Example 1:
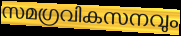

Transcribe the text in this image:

സമഗ്രവികസനവും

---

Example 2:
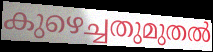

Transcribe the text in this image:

കുഴെച്ചതുമുതൽ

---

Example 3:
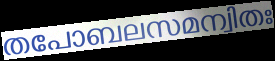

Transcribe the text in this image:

തപോബലസമന്വിതഃ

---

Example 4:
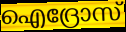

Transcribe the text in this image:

ഐദ്രോസ്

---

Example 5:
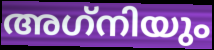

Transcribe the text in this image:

അഗ്‌നിയും